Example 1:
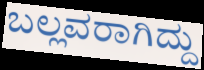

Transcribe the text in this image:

ಬಲ್ಲವರಾಗಿದ್ದು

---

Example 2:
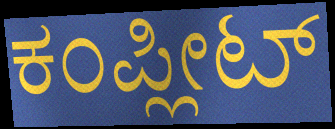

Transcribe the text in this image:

ಕಂಪ್ಲೀಟ್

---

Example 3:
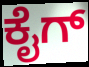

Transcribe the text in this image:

ಕೈಗ್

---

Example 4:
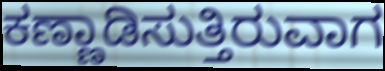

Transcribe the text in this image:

ಕಣ್ಣಾಡಿಸುತ್ತಿರುವಾಗ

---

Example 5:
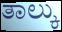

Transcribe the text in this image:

ತಾಲ್ಕು